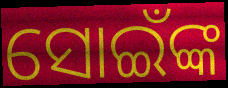
ସୋଇଁଙ୍କ